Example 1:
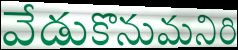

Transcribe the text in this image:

వేడుకొనుమనిరి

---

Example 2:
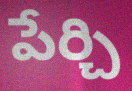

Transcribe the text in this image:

పేర్చి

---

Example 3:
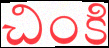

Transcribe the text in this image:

చింకి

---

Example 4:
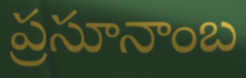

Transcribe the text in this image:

ప్రసూనాంబ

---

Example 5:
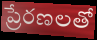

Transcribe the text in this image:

ప్రేరణలతో